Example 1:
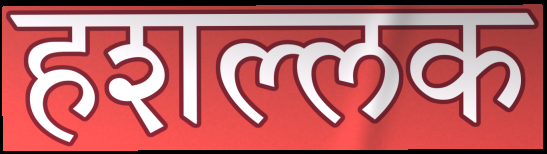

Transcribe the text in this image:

हशल्लक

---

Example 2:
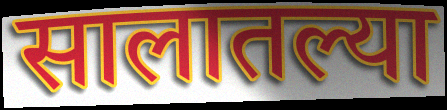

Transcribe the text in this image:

सालातल्या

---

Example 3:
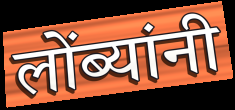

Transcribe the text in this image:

लोंब्यांनी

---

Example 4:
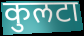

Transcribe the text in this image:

कुलटा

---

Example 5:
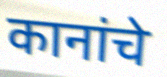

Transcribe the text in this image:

कानांचे